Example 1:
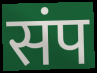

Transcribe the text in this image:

संप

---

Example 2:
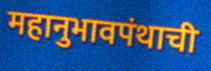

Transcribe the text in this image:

महानुभावपंथाची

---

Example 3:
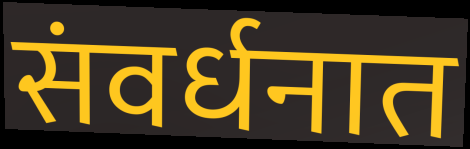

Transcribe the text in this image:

संवर्धनात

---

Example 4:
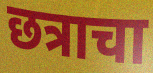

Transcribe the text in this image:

छत्राचा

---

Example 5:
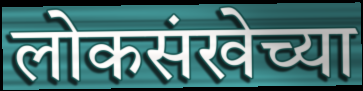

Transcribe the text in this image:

लोकसंखेच्या